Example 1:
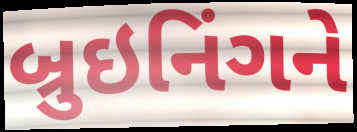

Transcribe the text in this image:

બ્રુઇનિંગને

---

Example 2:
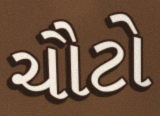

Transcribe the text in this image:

ચૌટો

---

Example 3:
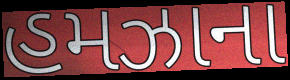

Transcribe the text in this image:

હમઝાના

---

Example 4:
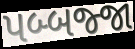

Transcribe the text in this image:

પબ્બજ્જા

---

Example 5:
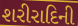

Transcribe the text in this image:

શરીરાદિની